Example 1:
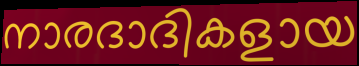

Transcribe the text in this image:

നാരദാദികളായ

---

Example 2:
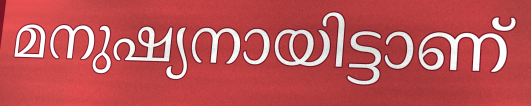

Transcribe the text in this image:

മനുഷ്യനായിട്ടാണ്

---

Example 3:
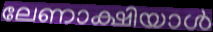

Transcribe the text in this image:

ലേണാക്ഷിയാൾ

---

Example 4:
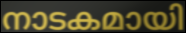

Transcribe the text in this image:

നാടകമായി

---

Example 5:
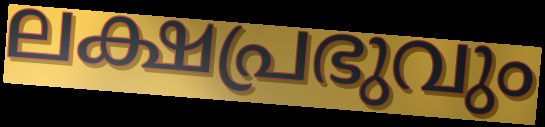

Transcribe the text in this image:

ലക്ഷപ്രഭുവും